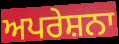
ਅਪਰੇਸ਼ਨਾ